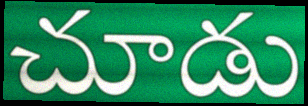
చూడు